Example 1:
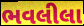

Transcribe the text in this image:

ભવલીલા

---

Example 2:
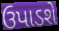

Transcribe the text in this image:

ઉપાડશે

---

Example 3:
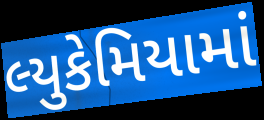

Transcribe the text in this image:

લ્યુકેમિયામાં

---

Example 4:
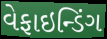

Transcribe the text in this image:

વેફાઇન્ડિંગ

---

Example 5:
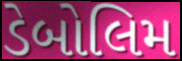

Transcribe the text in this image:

ડેબોલિમ